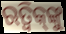
ଋତ୍ୱିକ୍‌ଙ୍କୁ